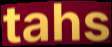
tahs